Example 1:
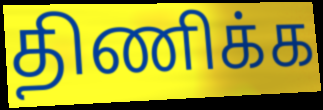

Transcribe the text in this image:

திணிக்க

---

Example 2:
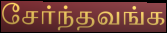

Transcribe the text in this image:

சேர்ந்தவங்க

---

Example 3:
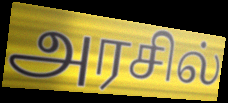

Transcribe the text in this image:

அரசில்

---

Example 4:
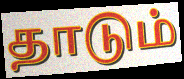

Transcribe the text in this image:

தாடும்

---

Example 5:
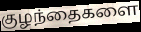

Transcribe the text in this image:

குழந்தைகளை